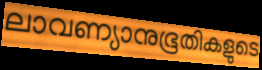
ലാവണ്യാനുഭൂതികളുടെ